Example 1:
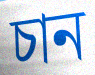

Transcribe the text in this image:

চান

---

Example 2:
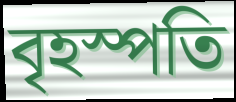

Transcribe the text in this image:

বৃহস্পতি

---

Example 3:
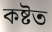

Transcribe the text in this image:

কষ্টত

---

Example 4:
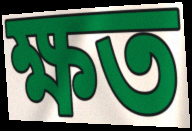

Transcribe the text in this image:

ক্ষত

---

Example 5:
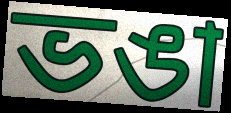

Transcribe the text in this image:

ভঙা